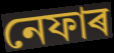
নেফাৰ